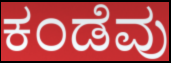
ಕಂಡೆವು